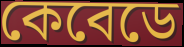
কেবেডে